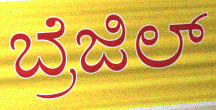
ಬ್ರೆಜಿಲ್